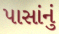
પાસાંનું